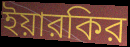
ইয়ারকির